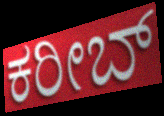
ಕರೀಬ್